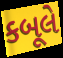
કબૂલે